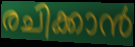
രചിക്കാൻ